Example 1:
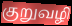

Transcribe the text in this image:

குறுவழி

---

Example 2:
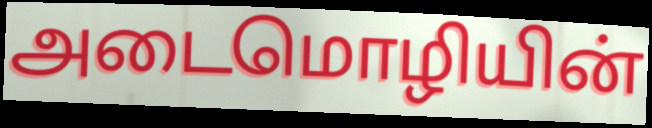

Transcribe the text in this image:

அடைமொழியின்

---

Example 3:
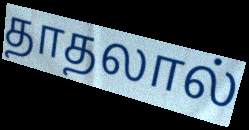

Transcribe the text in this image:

தாதலால்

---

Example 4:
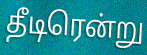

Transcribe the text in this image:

தீடிரென்று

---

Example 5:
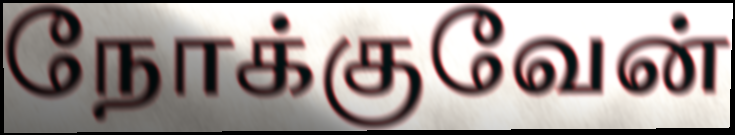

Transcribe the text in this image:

நோக்குவேன்